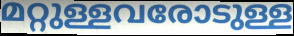
മറ്റുള്ളവരോടുള്ള